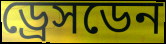
ড্রেসডেন